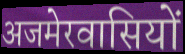
अजमेरवासियों